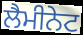
ਲੈਮੀਨੇਟ